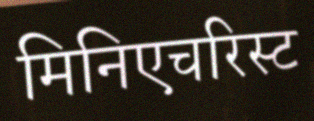
मिनिएचरिस्ट